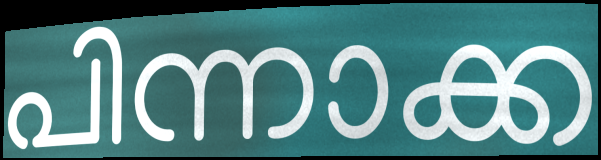
പിന്നാക്ക